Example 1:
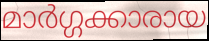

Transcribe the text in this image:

മാർഗ്ഗക്കാരായ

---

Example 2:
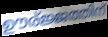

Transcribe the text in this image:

ഊര്ജ്ജത്തിന്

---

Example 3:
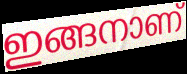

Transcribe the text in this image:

ഇങ്ങനാണ്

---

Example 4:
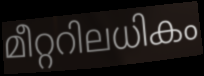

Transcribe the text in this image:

മീറ്ററിലധികം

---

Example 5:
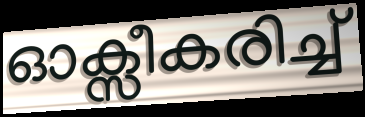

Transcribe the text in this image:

ഓക്സീകരിച്ച്